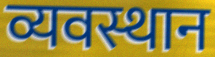
व्यवस्थान